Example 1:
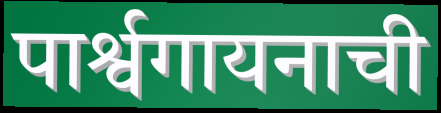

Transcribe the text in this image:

पार्श्वगायनाची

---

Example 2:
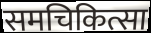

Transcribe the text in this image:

समचिकित्सा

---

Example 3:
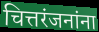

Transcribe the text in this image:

चित्तरंजनांना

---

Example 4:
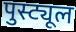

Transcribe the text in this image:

पुस्ट्यूल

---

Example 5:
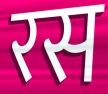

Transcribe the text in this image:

रस